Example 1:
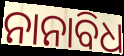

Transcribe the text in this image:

ନାନାବିଧ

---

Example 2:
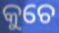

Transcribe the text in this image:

କୁଚେ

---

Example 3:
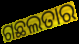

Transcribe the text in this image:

ଗଛଲତାର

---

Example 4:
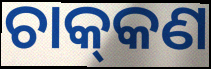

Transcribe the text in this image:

ଚାକ୍‌କଣ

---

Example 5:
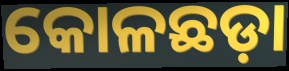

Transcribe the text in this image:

କୋଳଛଡ଼ା